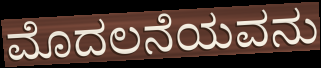
ಮೊದಲನೆಯವನು